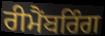
ਰੀਮੈਂਬਰਿੰਗ